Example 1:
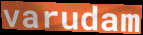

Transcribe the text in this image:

varudam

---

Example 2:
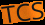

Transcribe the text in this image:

TCS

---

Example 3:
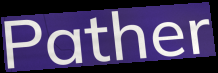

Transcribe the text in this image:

Pather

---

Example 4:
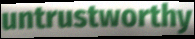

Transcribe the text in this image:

untrustworthy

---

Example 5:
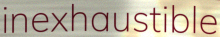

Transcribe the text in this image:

inexhaustible